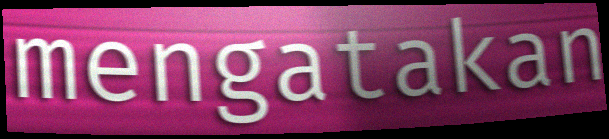
mengatakan